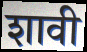
शावी